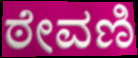
ಠೇವಣಿ